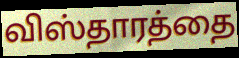
விஸ்தாரத்தை